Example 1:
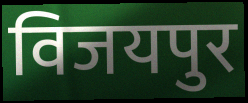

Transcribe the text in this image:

विजयपुर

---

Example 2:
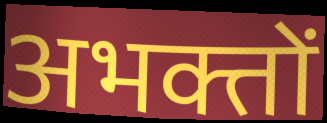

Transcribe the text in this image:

अभक्तों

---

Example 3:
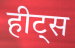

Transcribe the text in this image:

हीट्स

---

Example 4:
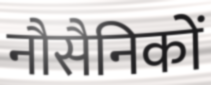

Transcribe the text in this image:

नौसैनिकों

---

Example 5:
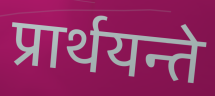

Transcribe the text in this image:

प्रार्थयन्ते